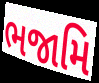
ભજામિ